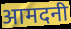
आमदनी